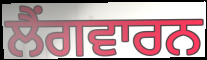
ਲੈਂਗਵਾਰਨ